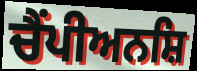
ਚੈਂਪੀਅਨਸ਼ਿ